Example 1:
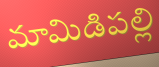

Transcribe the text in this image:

మామిడిపల్లి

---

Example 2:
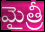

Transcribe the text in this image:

మైత్రీ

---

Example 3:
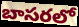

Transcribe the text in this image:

బాసరలో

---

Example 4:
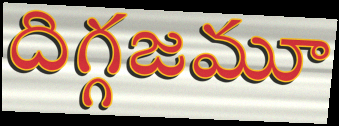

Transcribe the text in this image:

దిగ్గజమూ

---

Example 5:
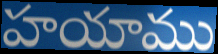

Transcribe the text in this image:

హయాము